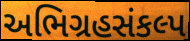
અભિગ્રહસંકલ્પ